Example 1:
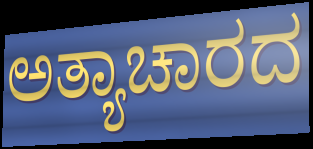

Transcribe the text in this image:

ಅತ್ಯಾಚಾರದ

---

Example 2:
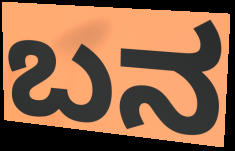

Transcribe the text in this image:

ಬನ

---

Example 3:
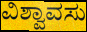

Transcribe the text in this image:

ವಿಶ್ವಾವಸು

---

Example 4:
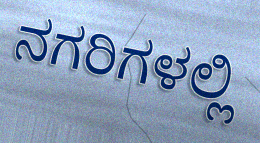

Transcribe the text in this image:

ನಗರಿಗಳಲ್ಲಿ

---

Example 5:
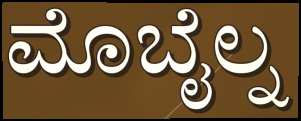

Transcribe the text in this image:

ಮೊಬೈಲ್ನ